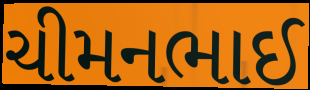
ચીમનભાઈ